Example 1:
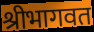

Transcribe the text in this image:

श्रीभागवत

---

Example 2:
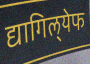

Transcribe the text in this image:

द्यागिल्येफ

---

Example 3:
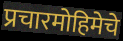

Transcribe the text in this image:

प्रचारमोहिमेचे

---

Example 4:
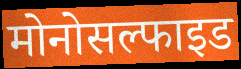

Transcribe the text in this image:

मोनोसल्फाइड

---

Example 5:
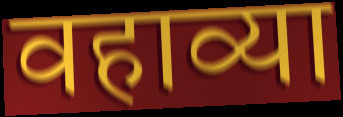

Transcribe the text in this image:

वहाव्या